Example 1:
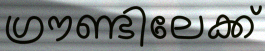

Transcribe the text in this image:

ഗ്രൗണ്ടിലേക്ക്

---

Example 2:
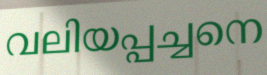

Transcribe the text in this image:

വലിയപ്പച്ചനെ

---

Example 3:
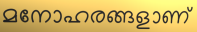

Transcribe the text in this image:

മനോഹരങ്ങളാണ്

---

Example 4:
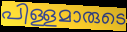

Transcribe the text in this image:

പിള്ളമാരുടെ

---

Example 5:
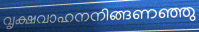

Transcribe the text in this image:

വൃക്ഷവാഹനനിങ്ങണഞ്ഞു